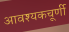
आवश्यकचूर्णी